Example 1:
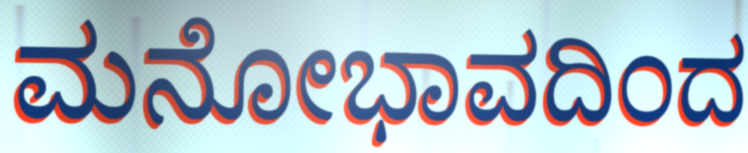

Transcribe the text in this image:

ಮನೋಭಾವದಿಂದ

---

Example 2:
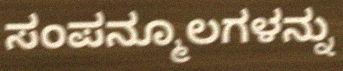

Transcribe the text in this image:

ಸಂಪನ್ಮೂಲಗಳನ್ನು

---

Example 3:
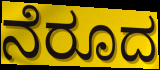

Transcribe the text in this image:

ನೆರೂದ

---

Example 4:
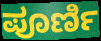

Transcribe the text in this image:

ಪೂರ್ಣಿ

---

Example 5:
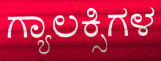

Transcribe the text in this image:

ಗ್ಯಾಲಕ್ಸಿಗಳ